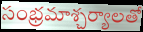
సంభ్రమాశ్చర్యాలతో